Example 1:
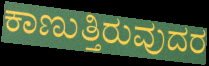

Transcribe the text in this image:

ಕಾಣುತ್ತಿರುವುದರ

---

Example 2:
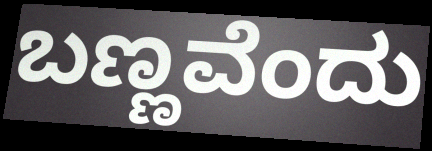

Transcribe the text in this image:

ಬಣ್ಣವೆಂದು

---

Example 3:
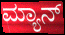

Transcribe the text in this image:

ಮ್ಯಾನ್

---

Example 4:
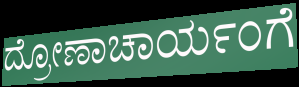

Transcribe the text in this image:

ದ್ರೋಣಾಚಾರ್ಯಂಗೆ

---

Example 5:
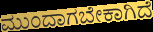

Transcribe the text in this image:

ಮುಂದಾಗಬೇಕಾಗಿದೆ